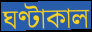
ঘণ্টাকাল